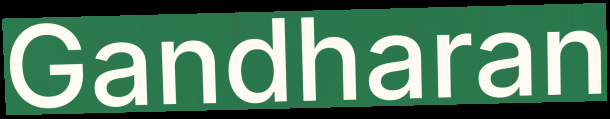
Gandharan